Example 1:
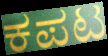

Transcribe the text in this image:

ಕಪಟ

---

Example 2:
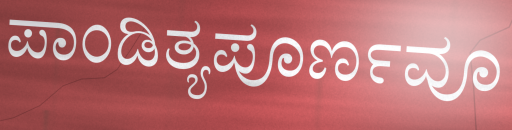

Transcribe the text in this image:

ಪಾಂಡಿತ್ಯಪೂರ್ಣವೂ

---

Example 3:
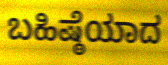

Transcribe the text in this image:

ಬಹಿಷ್ಠೆಯಾದ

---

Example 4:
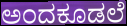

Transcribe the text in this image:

ಅಂದಕೂಡಲೆ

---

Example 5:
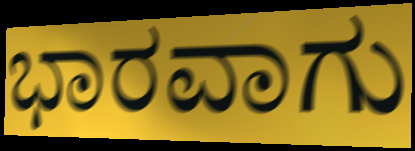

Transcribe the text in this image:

ಭಾರವಾಗು